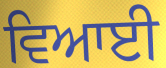
ਵਿਆਈ